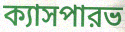
ক্যাসপারভ